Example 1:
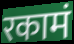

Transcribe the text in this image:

रकामं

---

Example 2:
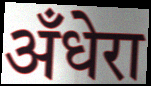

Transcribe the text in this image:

अँधेरा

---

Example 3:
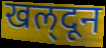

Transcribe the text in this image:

खल्दून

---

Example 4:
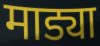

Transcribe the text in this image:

माड्या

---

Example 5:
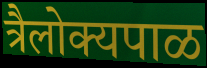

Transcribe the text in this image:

त्रैलोक्यपाळ